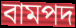
বামপদ